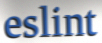
eslint